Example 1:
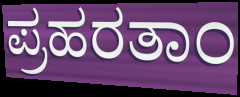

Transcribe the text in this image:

ಪ್ರಹರತಾಂ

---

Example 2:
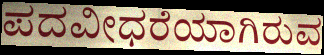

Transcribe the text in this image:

ಪದವೀಧರೆಯಾಗಿರುವ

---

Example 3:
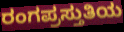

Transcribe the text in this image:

ರಂಗಪ್ರಸ್ತುತಿಯ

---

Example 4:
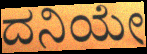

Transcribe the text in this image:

ದನಿಯೇ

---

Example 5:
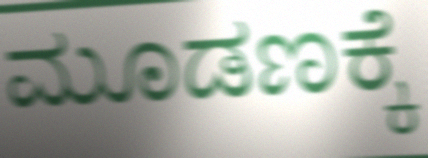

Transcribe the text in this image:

ಮೂಡಣಕ್ಕೆ